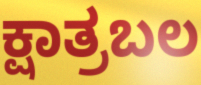
ಕ್ಷಾತ್ರಬಲ